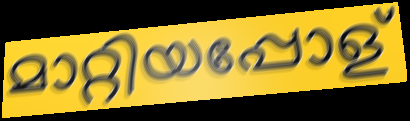
മാറ്റിയപ്പോള്